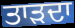
ਤਾੜਦਾ